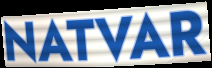
NATVAR